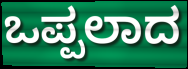
ಒಪ್ಪಲಾದ